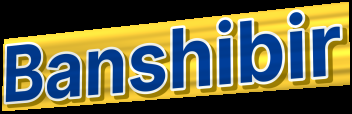
Banshibir